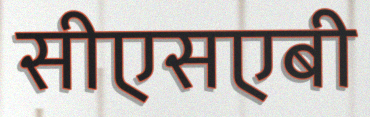
सीएसएबी